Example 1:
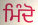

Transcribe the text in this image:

ਮਿੰਦੋ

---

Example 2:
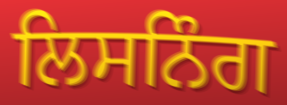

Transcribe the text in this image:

ਲਿਸਨਿੰਗ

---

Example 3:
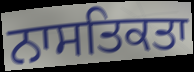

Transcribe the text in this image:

ਨਾਸਤਿਕਤਾ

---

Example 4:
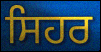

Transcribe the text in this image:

ਸਿਹਰ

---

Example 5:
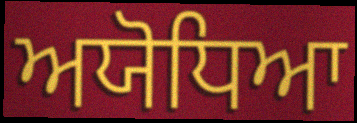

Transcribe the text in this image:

ਅਯੋਧਿਆ